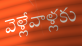
వెళ్లేవాళ్లకు